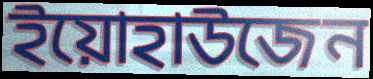
ইয়োহাউজেন